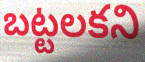
బట్టలకని